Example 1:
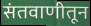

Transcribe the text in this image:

संतवाणीतून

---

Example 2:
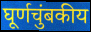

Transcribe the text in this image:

घूर्णचुंबकीय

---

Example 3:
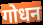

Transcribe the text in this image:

गोधन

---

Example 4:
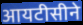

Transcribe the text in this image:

आयटीसीने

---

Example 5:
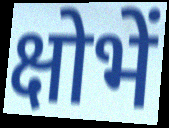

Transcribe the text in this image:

क्षोभें